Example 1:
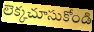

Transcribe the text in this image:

లెక్కచూసుకోండి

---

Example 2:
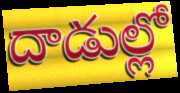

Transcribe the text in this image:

దాడుల్లో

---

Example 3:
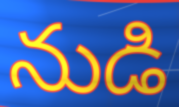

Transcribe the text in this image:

నుడి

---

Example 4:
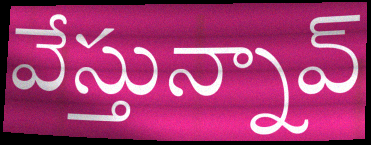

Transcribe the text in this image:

వేస్తున్నావ్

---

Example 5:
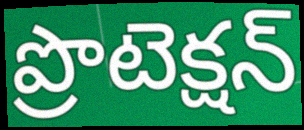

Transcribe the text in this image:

ప్రొటెక్షన్